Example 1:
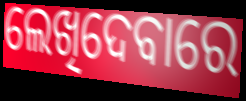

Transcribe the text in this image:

ଲେଖିଦେବାରେ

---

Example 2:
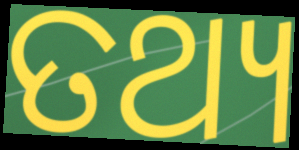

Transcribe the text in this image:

ତଥ୍ୟ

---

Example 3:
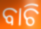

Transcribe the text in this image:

ବାଚି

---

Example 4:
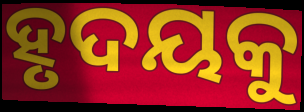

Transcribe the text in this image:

ହୃଦୟକୁ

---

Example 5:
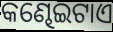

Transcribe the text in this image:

କଣ୍ଢେଇଟାଏ